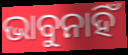
ଭାବୁନାହିଁ